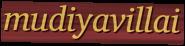
mudiyavillai